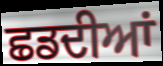
ਛਡਦੀਆਂ